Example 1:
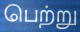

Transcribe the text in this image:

பெற்று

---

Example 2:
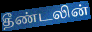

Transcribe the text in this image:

தீண்டலின்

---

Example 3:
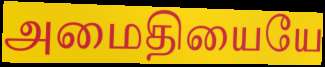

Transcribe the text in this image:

அமைதியையே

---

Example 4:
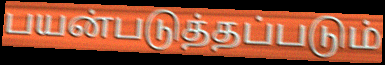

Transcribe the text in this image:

பயன்படுத்தப்படும்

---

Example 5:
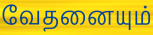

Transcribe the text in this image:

வேதனையும்